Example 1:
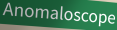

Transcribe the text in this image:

Anomaloscope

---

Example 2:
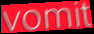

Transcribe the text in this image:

vomit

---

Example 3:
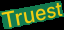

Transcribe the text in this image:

Truest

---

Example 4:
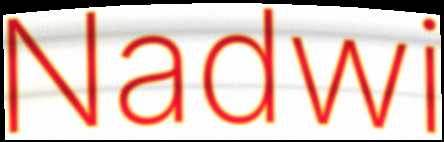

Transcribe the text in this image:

Nadwi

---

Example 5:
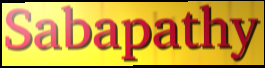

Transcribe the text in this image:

Sabapathy